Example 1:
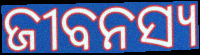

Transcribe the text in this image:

ଜୀବନସ୍ୟ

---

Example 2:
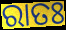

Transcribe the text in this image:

ରାତଃ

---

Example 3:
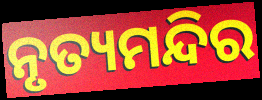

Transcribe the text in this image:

ନୃତ୍ୟମନ୍ଦିର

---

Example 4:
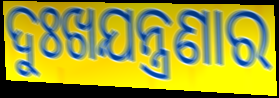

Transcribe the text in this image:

ଦୁଃଖଯନ୍ତ୍ରଣାର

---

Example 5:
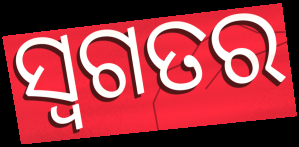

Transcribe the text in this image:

ସ୍ୱଗତର